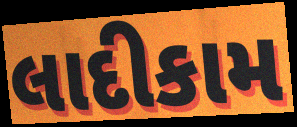
લાદીકામ